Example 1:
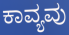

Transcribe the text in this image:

ಕಾವ್ಯವು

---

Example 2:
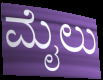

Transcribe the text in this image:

ಮೈಲು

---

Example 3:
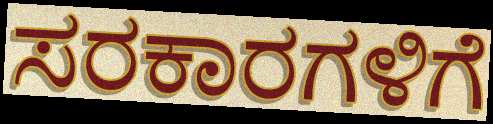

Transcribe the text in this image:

ಸರಕಾರಗಳಿಗೆ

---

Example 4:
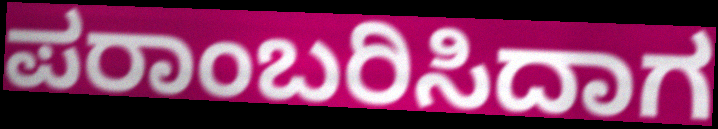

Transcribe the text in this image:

ಪರಾಂಬರಿಸಿದಾಗ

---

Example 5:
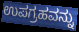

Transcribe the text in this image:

ಉಪಗ್ರಹವನ್ನು